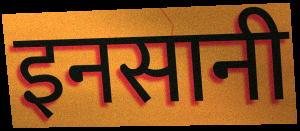
इनसानी